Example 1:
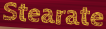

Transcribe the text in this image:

Stearate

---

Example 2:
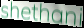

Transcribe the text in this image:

shethani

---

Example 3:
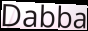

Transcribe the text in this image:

Dabba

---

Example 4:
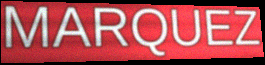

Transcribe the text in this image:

MARQUEZ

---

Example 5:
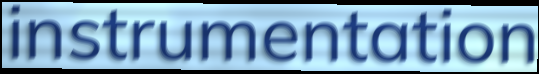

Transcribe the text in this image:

instrumentation